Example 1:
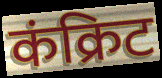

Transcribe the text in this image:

कंक्रिट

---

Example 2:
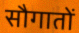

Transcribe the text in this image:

सौगातों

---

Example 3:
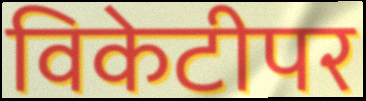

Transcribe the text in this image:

विकेटीपर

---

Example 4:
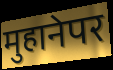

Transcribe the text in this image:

मुहानेपर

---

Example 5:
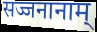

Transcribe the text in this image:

सज्जनानाम्